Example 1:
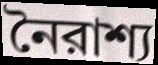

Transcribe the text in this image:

নৈরাশ্য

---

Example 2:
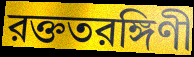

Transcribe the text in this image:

রক্ততরঙ্গিণী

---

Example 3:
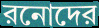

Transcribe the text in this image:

রনোদের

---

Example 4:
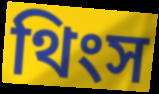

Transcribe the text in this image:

থিংস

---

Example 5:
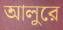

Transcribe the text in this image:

আলুরে